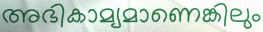
അഭികാമ്യമാണെങ്കിലും